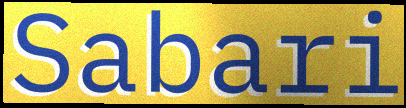
Sabari